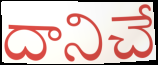
దానిచే